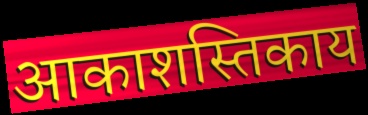
आकाशस्तिकाय